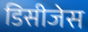
डिसीजेस